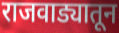
राजवाड्यातून